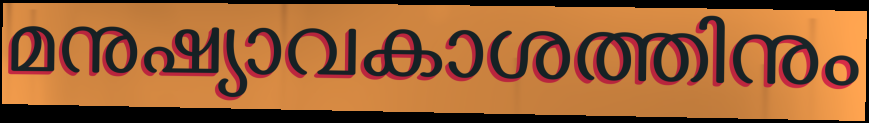
മനുഷ്യാവകാശത്തിനും